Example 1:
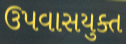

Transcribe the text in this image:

ઉપવાસયુક્ત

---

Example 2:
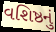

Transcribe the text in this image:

વશિષ્ઠનું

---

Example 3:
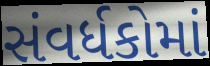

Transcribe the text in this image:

સંવર્ધકોમાં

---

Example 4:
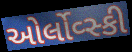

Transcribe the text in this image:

ઓર્લોવ્સ્કી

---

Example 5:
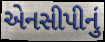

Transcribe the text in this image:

એનસીપીનું